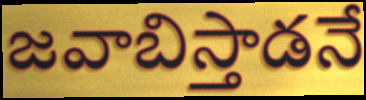
జవాబిస్తాడనే